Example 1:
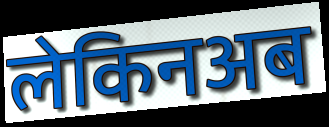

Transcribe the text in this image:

लेकिनअब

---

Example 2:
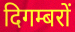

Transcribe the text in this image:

दिगम्बरों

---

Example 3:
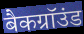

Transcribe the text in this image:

बैकग्रॉउंड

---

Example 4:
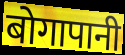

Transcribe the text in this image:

बोगापानी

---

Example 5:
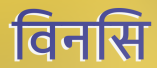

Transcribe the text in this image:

विनसि